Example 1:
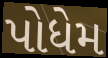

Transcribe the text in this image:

પોધેમ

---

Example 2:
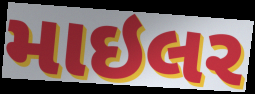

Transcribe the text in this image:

માઇલર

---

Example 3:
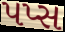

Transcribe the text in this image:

પપ્સ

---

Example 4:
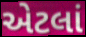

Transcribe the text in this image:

એટલાં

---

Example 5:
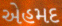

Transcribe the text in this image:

એહમદ